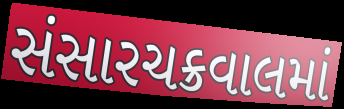
સંસારચક્રવાલમાં